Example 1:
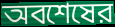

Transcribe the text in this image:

অবশেষের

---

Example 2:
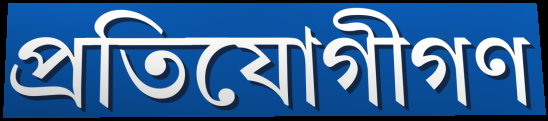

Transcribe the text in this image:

প্রতিযোগীগণ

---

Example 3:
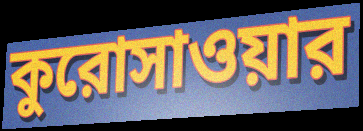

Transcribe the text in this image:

কুরোসাওয়ার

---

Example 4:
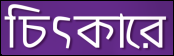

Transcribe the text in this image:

চিৎকারে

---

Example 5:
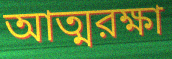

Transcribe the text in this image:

আত্মরক্ষা